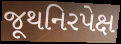
જૂથનિરપેક્ષ